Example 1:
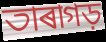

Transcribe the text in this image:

তাৰাগড়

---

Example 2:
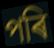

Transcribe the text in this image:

পৰি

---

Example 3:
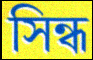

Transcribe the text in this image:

সিন্ধ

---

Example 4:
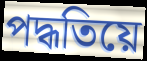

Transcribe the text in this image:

পদ্ধতিয়ে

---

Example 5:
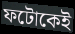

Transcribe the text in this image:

ফটোকেই